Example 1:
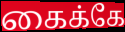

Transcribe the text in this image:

கைக்கே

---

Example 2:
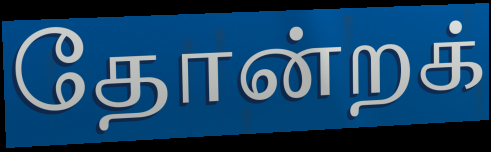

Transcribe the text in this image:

தோன்றக்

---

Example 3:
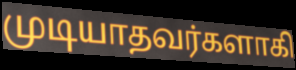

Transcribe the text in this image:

முடியாதவர்களாகி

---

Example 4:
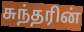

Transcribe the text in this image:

சுந்தரின்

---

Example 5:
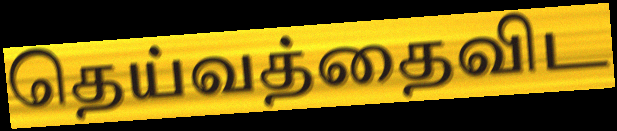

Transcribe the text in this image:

தெய்வத்தைவிட